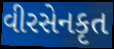
વીરસેનકૃત